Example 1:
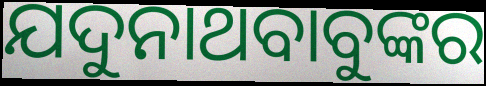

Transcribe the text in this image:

ଯଦୁନାଥବାବୁଙ୍କର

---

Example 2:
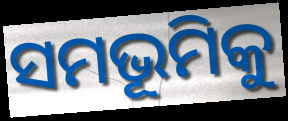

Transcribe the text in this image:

ସମଭୂମିକୁ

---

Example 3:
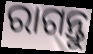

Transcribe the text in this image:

ରାଗନ୍ତୁ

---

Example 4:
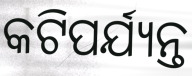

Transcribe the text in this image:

କଟିପର୍ଯ୍ୟନ୍ତ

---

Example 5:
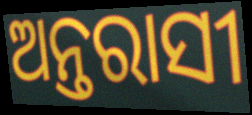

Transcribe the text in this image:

ଅନ୍ତରାସୀ